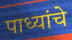
पाध्यांचे